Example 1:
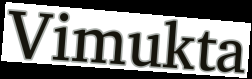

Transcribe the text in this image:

Vimukta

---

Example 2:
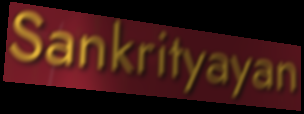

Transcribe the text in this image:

Sankrityayan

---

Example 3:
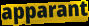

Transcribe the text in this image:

apparant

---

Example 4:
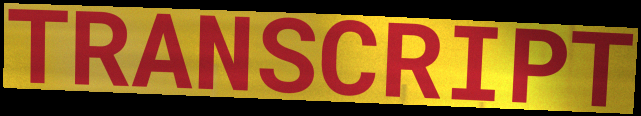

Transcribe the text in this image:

TRANSCRIPT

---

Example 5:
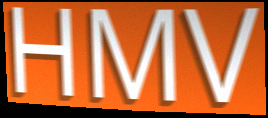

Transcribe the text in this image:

HMV